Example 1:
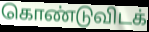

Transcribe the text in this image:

கொண்டுவிடக்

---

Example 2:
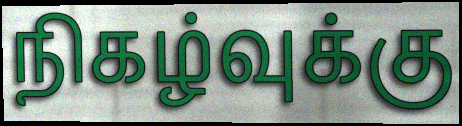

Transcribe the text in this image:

நிகழ்வுக்கு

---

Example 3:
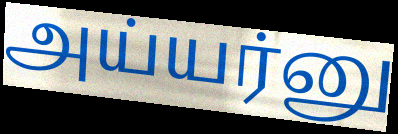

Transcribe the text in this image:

அய்யர்னு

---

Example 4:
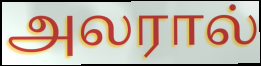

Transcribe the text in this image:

அலரால்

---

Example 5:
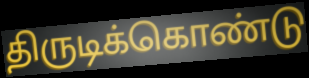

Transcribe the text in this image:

திருடிக்கொண்டு